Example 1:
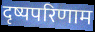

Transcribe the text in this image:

दृष्यपरिणाम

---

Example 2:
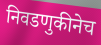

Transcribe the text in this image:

निवडणुकीनेच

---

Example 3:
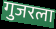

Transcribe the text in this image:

गुजरला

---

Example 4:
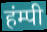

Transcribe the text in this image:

हंम्पी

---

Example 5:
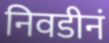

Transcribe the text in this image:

निवडीनं